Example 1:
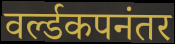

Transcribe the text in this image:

वर्ल्डकपनंतर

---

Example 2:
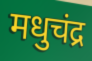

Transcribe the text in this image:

मधुचंद्र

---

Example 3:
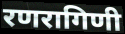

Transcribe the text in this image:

रणरागिणी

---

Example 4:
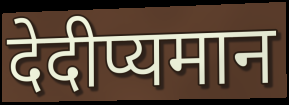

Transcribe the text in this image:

देदीप्यमान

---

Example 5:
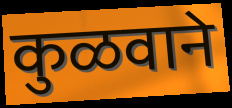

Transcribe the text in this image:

कुळवाने